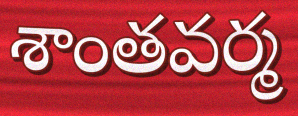
శాంతవర్మ